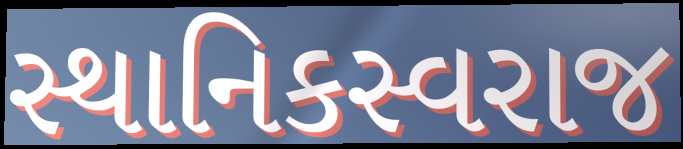
સ્થાનિકસ્વરાજ